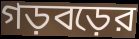
গড়বড়ের